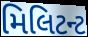
મિલિટન્ટ